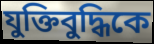
যুক্তিবুদ্ধিকে